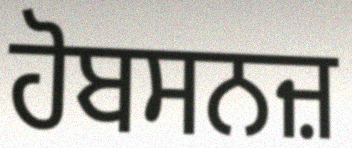
ਹੋਬਸਨਜ਼